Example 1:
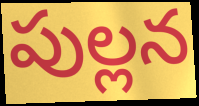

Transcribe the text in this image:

పుల్లన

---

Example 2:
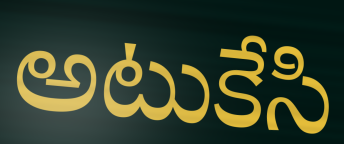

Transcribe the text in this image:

అటుకేసి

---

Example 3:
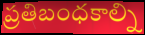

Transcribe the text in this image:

ప్రతిబంధకాల్ని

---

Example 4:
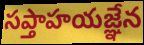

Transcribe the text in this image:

సప్తాహయజ్ఞేన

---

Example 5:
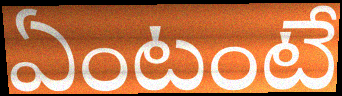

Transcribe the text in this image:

ఏంటంటే